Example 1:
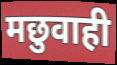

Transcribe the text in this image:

मछुवाही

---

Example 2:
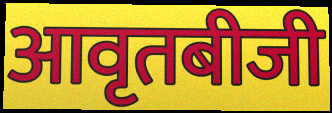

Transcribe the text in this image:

आवृतबीजी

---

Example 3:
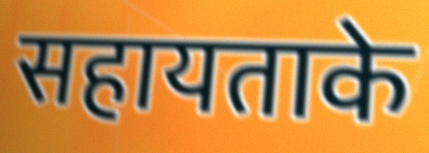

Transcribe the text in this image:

सहायताके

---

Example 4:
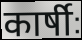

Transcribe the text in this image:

कार्षीः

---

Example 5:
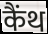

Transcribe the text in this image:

कैंथ